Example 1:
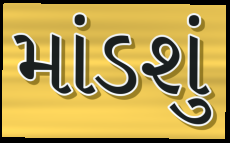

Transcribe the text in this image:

માંડશું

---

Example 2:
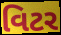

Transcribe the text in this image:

વિટર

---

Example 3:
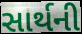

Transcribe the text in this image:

સાર્થની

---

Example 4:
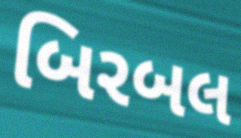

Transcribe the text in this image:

બિરબલ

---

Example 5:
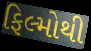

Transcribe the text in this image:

ફિલ્મોથી